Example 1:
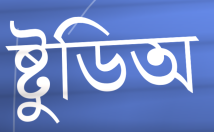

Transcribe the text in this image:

ষ্টুডিঅ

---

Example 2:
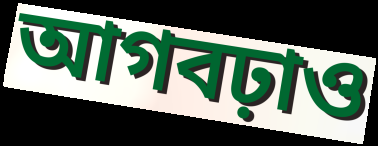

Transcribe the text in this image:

আগবঢ়াও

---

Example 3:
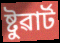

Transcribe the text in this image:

ষ্টুৱাৰ্ট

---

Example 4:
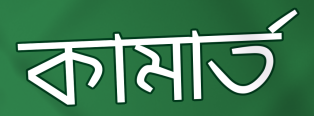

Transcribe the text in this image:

কামাৰ্ত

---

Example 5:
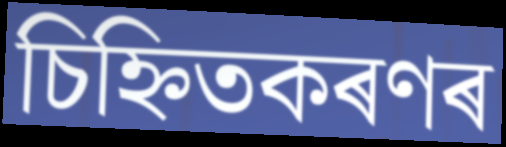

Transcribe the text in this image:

চিহ্নিতকৰণৰ